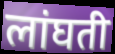
लांघती